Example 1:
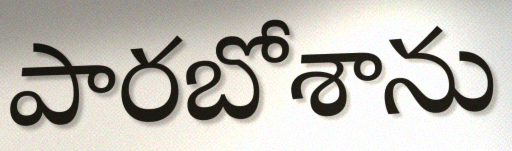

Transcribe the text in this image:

పారబోశాను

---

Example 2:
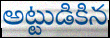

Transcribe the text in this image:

అట్టుడికిన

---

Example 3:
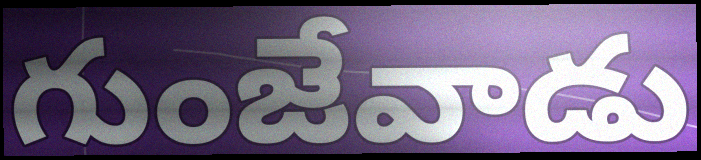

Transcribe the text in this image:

గుంజేవాడు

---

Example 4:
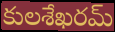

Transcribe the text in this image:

కులశేఖరమ్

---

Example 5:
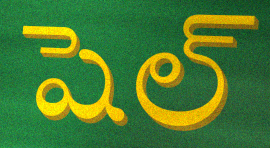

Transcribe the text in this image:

షెల్